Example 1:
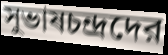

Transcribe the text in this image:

সুভাষচন্দ্রদের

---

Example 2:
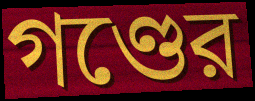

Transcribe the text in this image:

গণ্ডের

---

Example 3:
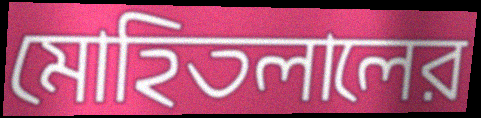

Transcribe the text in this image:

মোহিতলালের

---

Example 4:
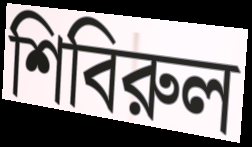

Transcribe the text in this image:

শিবিরুল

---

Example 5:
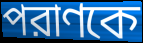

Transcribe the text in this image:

পরাণকে